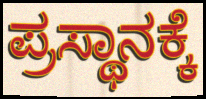
ಪ್ರಸ್ಥಾನಕ್ಕೆ